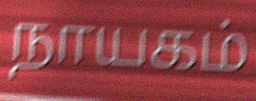
நாயகம்